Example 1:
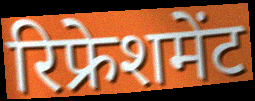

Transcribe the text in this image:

रिफ्रेशमेंट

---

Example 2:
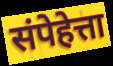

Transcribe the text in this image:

संपेहेत्ता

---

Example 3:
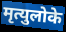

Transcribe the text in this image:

मृत्युलोके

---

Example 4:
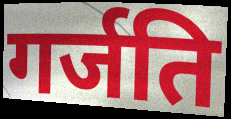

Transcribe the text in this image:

गर्जति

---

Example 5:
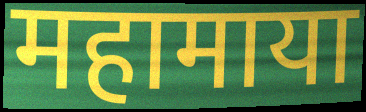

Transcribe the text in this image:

महामाया